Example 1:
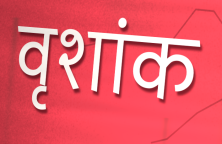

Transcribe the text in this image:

वृशांक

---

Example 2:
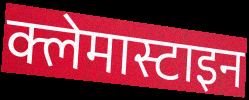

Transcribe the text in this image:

क्लेमास्टाइन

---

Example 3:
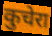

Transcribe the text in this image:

कुचेरा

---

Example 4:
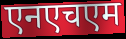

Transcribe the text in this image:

एनएचएम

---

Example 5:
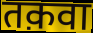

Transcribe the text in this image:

तक़वा